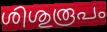
ശിശുരൂപം